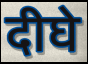
दीघे